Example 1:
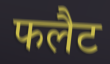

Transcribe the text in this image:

फलैट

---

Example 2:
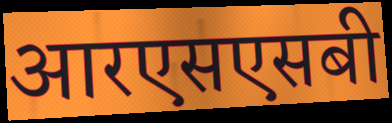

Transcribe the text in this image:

आरएसएसबी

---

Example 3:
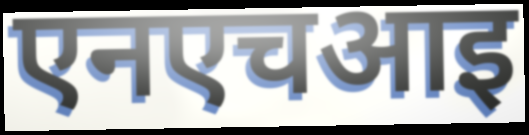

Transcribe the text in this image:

एनएचआइ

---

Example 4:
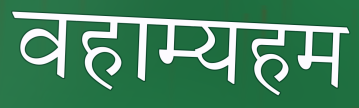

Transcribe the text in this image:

वहाम्यहम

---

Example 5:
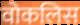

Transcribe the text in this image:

वोकलिस